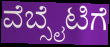
ವೆಬ್ಸೈಟಿಗೆ